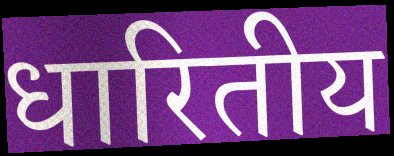
धारितीय